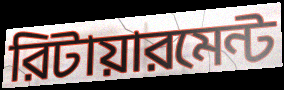
রিটায়ারমেন্ট